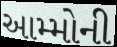
આમ્મોની